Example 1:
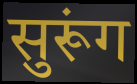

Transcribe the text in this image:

सुरूंग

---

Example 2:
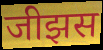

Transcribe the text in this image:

जीझस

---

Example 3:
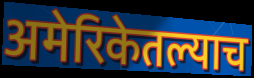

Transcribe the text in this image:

अमेरिकेतल्याच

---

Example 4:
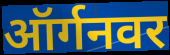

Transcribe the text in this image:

ऑर्गनवर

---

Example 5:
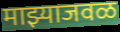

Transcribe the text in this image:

माझ्याजवळ